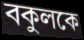
বকুলকে